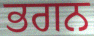
ਭਗਨ